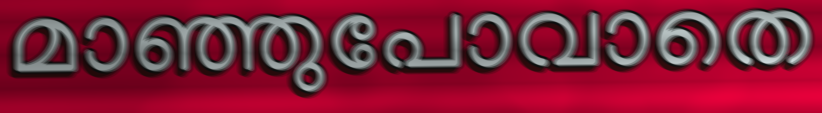
മാഞ്ഞുപോവാതെ